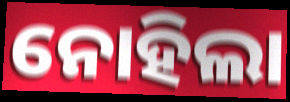
ନୋହିଲା